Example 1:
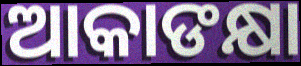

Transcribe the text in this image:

ଆକାଙକ୍ଷା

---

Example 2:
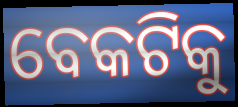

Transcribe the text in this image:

ବେକଟିକୁ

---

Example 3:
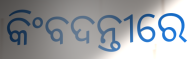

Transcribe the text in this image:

କିଂବଦନ୍ତୀରେ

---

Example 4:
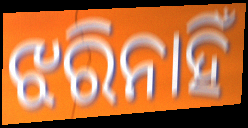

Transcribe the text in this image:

ଝରିନାହିଁ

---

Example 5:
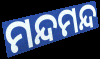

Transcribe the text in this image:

ମନ୍ଦମନ୍ଦ